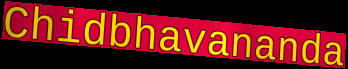
Chidbhavananda